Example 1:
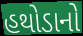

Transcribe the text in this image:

હથોડાનો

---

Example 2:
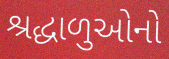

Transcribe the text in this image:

શ્રદ્ધાળુઓનો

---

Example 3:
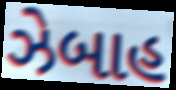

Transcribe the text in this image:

ઝેબાહ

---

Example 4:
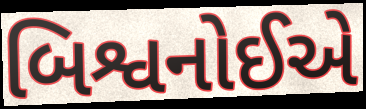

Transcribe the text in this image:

બિશ્વનોઈએ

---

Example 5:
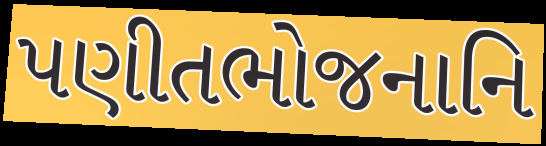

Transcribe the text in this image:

પણીતભોજનાનિ